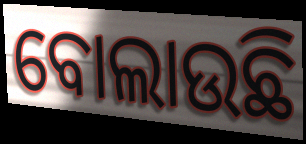
ବୋଲାଉଛି